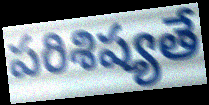
పరిశిష్యతే